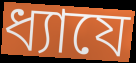
ধ্যাযে